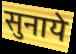
सुनाये